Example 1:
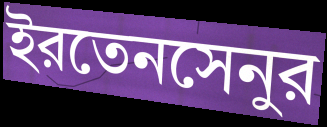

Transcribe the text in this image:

ইরতেনসেনুর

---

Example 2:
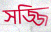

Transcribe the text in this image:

সজ্জি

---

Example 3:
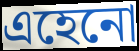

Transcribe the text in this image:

এহেনো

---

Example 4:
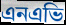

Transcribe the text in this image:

এনএভি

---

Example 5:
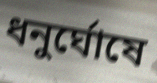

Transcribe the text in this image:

ধনুর্ঘোষে